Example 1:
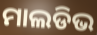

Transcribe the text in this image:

ମାଲଡିଭ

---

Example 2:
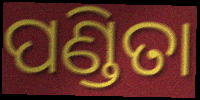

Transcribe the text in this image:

ପଣ୍ଡିତା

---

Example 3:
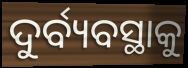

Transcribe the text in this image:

ଦୁର୍ବ୍ୟବସ୍ଥାକୁ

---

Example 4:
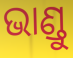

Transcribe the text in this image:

ଭାଣ୍ଡୁ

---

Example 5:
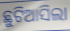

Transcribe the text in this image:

ଛୁଟିଆସିଲା